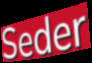
Seder